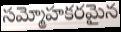
సమ్మోహకరమైన